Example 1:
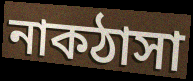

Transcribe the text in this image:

নাকঠাসা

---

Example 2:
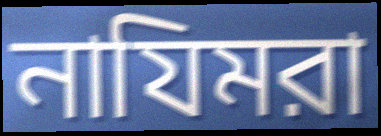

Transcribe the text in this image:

নাযিমরা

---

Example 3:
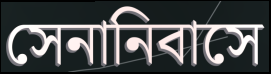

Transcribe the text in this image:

সেনানিবাসে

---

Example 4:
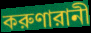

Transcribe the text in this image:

করুণারানী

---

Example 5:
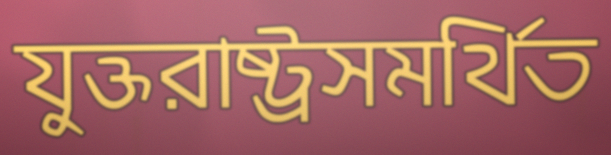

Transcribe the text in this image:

যুক্তরাষ্ট্রসমর্থিত